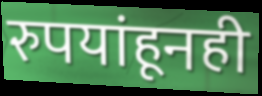
रुपयांहूनही